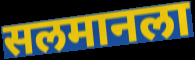
सलमानला